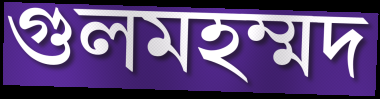
গুলমহম্মদ